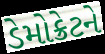
ડેમોક્રેટને